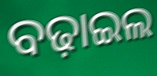
ବଢ଼ାଇଲ